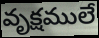
వృక్షములే